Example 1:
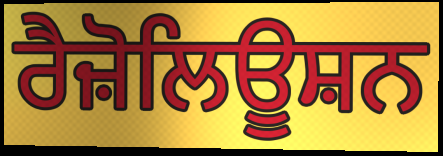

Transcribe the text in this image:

ਰੈਜ਼ੋਲਿਊਸ਼ਨ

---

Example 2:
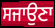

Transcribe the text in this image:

ਸਜਾਉਣਾ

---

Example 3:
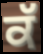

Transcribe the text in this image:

ਕੱ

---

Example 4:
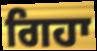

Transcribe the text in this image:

ਗਿਹਾ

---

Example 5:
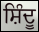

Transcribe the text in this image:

ਸ਼ਿੰਦੂ